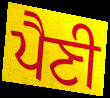
ਪੈਣੀ